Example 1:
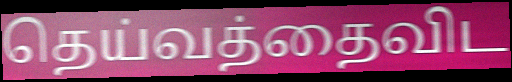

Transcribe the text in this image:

தெய்வத்தைவிட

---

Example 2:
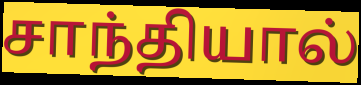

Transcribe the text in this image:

சாந்தியால்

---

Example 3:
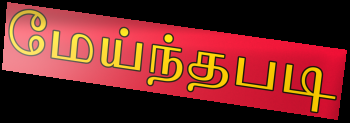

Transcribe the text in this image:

மேய்ந்தபடி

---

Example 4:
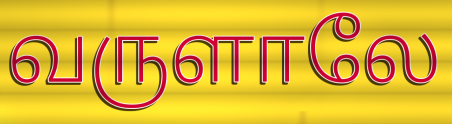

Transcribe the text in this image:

வருளாலே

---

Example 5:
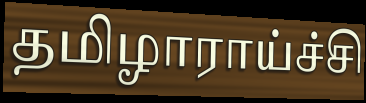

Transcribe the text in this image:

தமிழாராய்ச்சி